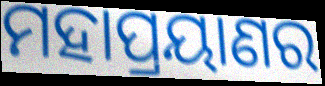
ମହାପ୍ରୟାଣର